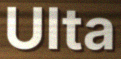
Ulta